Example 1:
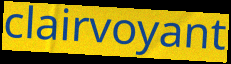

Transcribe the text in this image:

clairvoyant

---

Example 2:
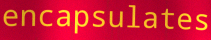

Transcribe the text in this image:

encapsulates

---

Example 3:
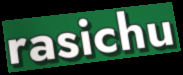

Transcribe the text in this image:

rasichu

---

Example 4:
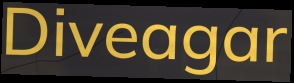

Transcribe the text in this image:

Diveagar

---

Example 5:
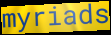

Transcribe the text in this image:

myriads